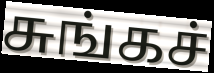
சுங்கச்